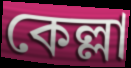
কেল্লা